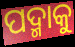
ପଦ୍ମାକୁ